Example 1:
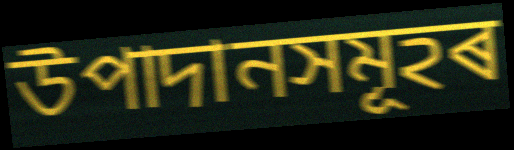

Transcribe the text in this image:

উপাদানসমূহৰ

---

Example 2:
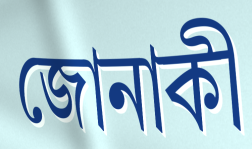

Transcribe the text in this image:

জোনাকী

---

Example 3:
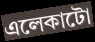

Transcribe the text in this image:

এলেকাটো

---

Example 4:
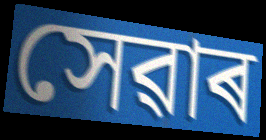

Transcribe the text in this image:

সেৱাৰ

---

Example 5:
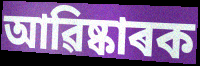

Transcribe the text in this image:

আৱিষ্কাৰক